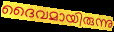
ദൈവമായിരുന്നു